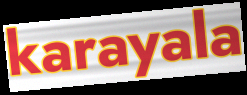
karayala